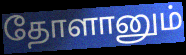
தோளானும்